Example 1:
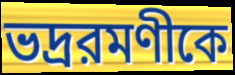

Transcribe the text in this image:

ভদ্ররমণীকে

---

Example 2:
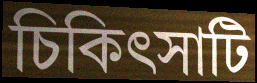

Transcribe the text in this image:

চিকিৎসাটি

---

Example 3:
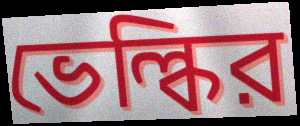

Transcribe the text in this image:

ভেল্কির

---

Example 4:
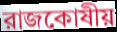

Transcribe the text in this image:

রাজকোষীয়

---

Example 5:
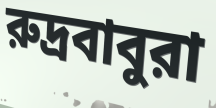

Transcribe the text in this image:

রুদ্রবাবুরা